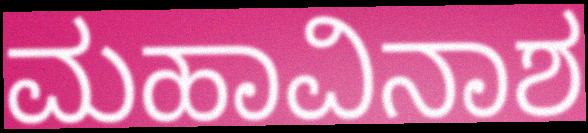
ಮಹಾವಿನಾಶ